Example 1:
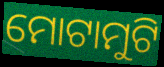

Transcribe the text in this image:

ମୋଟାମୁଟି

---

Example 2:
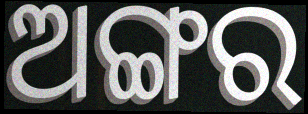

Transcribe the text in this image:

ଅଙ୍ଗର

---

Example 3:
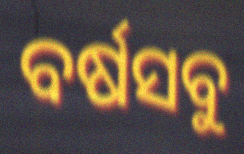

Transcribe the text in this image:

ବର୍ଷସବୁ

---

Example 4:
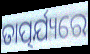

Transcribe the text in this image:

ତାତ୍ପର୍ଯ୍ୟରେ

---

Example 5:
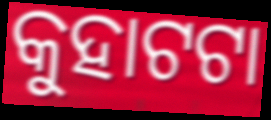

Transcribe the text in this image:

କୁହାଟଟା